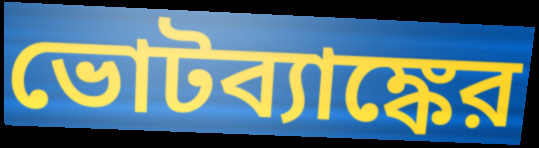
ভোটব্যাঙ্কের